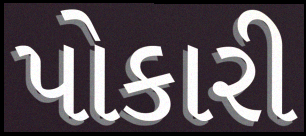
પોકારી